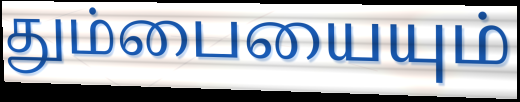
தும்பையையும்